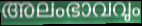
അലംഭാവവും